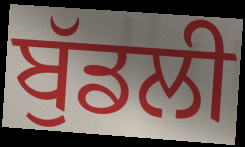
ਬੁੱਡਲੀ